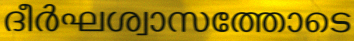
ദീർഘശ്വാസത്തോടെ